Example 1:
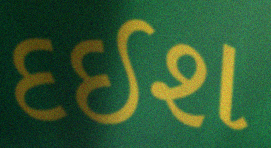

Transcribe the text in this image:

દઈશ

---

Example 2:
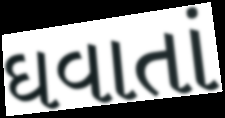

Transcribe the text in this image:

ઘવાતાં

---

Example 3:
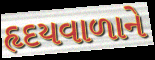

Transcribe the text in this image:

હૃદયવાળાને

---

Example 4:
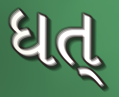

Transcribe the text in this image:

ધત્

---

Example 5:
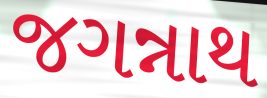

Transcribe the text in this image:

જગન્નાથ